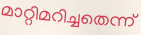
മാറ്റിമറിച്ചതെന്ന്